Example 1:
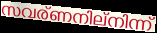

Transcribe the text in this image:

സവര്ണനില്നിന്ന്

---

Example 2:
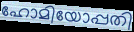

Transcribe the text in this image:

ഹോമിയോപ്പതി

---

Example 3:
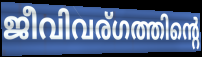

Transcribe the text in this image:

ജീവിവര്ഗത്തിന്റെ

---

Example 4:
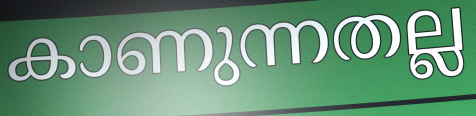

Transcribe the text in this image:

കാണുന്നതല്ല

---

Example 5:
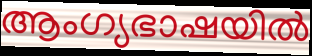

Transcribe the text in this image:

ആംഗ്യഭാഷയിൽ